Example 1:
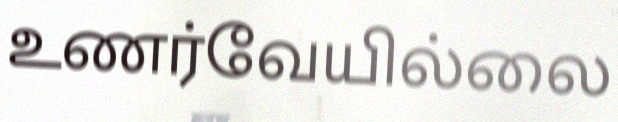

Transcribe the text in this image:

உணர்வேயில்லை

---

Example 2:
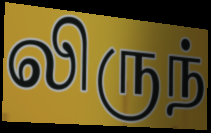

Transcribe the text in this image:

லிருந்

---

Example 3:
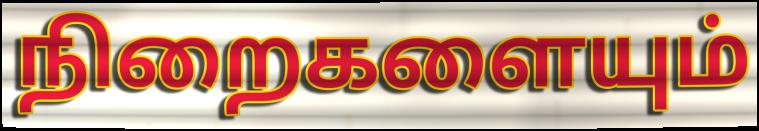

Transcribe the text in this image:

நிறைகளையும்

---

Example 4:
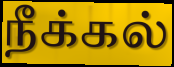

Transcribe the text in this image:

நீக்கல்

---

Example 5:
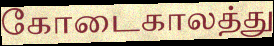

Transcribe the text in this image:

கோடைகாலத்து